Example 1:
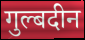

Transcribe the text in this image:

गुल्बदीन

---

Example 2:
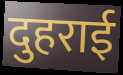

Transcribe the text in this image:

दुहराई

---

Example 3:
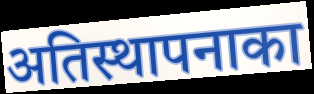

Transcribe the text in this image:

अतिस्थापनाका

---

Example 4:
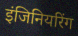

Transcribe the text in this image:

इंजिनियरिंग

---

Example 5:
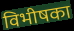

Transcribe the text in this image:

विभीषका